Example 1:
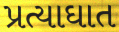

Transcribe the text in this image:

પ્રત્યાઘાત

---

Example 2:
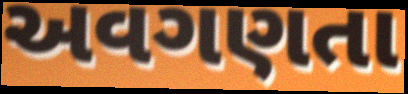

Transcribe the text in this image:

અવગણતા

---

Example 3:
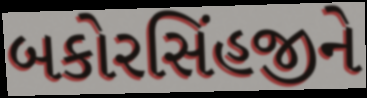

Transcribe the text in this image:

બકોરસિંહજીને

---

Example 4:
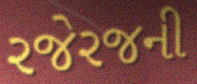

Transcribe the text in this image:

રજેરજની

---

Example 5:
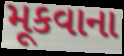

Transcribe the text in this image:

મૂકવાના